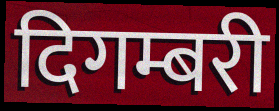
दिगम्बरी